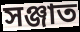
সঞ্জাত